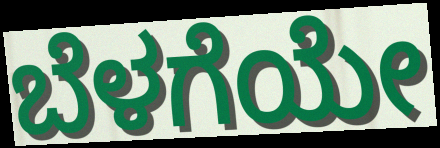
ಬೆಳಗೆಯೇ